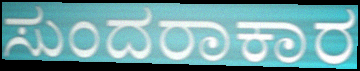
ಸುಂದರಾಕಾರ